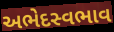
અભેદસ્વભાવ